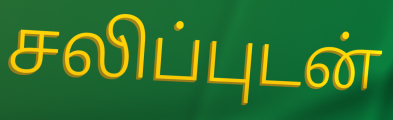
சலிப்புடன்